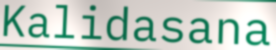
Kalidasana